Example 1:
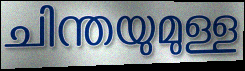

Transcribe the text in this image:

ചിന്തയുമുള്ള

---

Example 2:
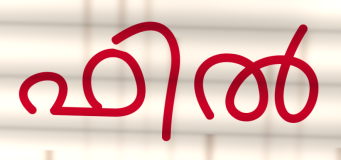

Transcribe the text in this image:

ഫിൽ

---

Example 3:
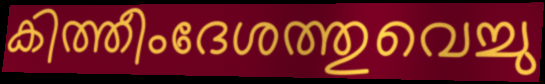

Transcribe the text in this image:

കിത്തീംദേശത്തുവെച്ചു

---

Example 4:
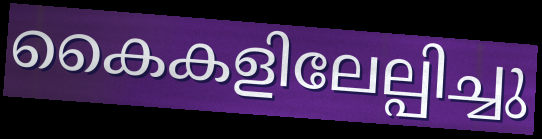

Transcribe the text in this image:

കൈകളിലേല്പിച്ചു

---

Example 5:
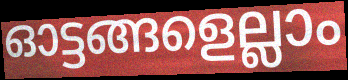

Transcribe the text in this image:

ഓട്ടങ്ങളെല്ലാം